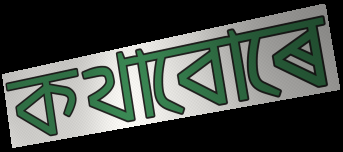
কথাবোৰে